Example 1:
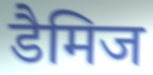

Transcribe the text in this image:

डैमिज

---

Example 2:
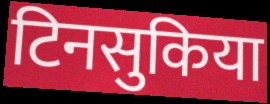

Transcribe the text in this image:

टिनसुकिया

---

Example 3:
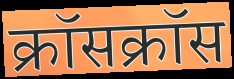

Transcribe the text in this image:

क्रॉसक्रॉस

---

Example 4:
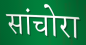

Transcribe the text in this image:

सांचोरा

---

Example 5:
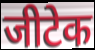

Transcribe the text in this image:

जीटेक